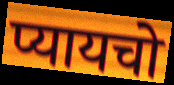
प्यायचो